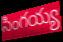
సింగయ్య